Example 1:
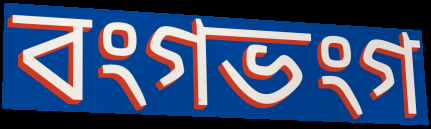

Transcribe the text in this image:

বংগভংগ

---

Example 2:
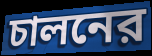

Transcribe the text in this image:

চালনের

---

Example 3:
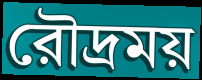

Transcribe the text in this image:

রৌদ্রময়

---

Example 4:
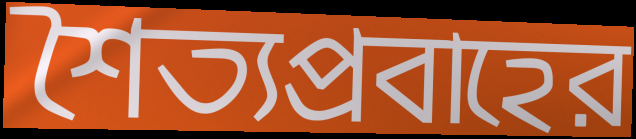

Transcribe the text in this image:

শৈত্যপ্রবাহের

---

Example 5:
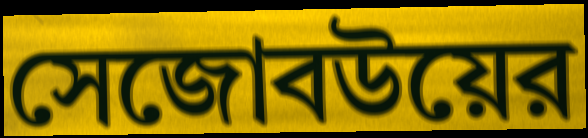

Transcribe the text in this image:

সেজোবউয়ের